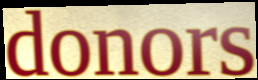
donors